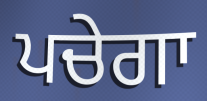
ਪਚੇਗਾ